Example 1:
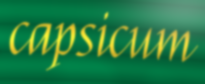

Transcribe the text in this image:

capsicum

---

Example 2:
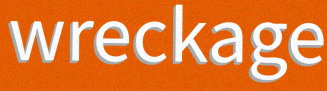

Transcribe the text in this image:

wreckage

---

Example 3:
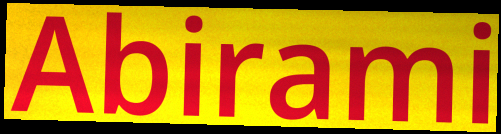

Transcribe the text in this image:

Abirami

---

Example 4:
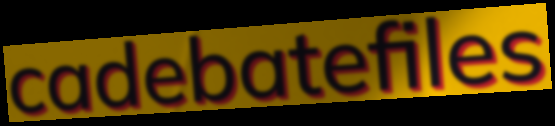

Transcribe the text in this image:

cadebatefiles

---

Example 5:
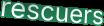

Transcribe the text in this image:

rescuers